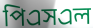
পিএসএল